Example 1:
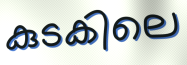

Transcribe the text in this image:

കുടകിലെ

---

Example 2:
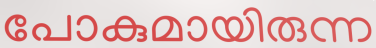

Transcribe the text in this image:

പോകുമായിരുന്ന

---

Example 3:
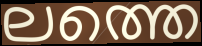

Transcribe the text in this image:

ലത്തെ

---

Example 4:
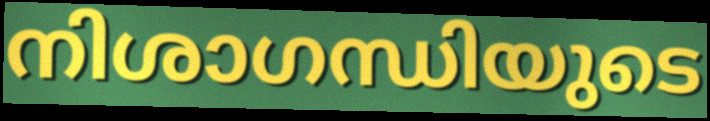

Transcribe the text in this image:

നിശാഗന്ധിയുടെ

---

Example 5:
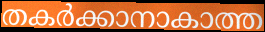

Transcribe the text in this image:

തകർക്കാനാകാത്ത